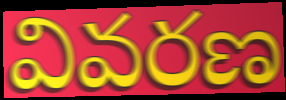
వివరణ